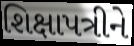
શિક્ષાપત્રીને